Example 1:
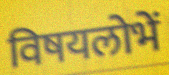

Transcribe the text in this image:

विषयलोभें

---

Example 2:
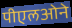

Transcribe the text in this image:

पीएलओने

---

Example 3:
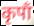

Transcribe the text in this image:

कृपाँ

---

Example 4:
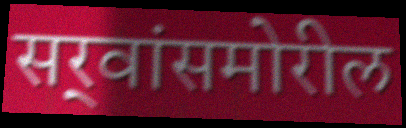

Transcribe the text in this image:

सर्वांसमोरील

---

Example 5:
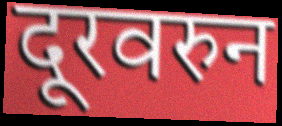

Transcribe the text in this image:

दूरवरुन